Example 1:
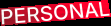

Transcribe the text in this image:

PERSONAL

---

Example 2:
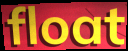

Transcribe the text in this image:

float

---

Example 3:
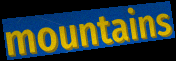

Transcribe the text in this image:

mountains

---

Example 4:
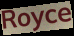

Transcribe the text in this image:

Royce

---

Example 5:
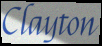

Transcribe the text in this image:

Clayton